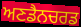
ਅਣਡੈਨਚਰਡ